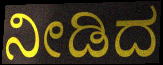
ನೀಡಿದ